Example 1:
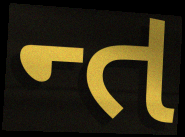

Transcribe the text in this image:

ન્ત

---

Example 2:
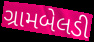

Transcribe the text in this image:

ગ્રામબેલડી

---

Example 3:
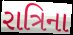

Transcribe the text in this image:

રાત્રિના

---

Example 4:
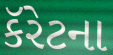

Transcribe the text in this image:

કૅરેટના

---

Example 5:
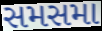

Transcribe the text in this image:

સમસમા